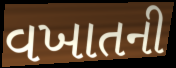
વખાતની